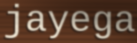
jayega